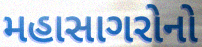
મહાસાગરોનો